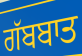
ਗੱਬਬਾਤ